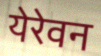
येरेवन